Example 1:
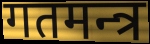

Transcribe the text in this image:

गतमन्त्र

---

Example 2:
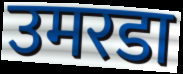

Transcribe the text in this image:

उमरडा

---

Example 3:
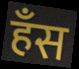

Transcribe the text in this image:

हँस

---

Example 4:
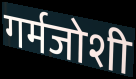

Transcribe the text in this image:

गर्मजोशी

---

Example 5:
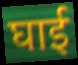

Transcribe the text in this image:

घाई